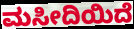
ಮಸೀದಿಯಿದೆ